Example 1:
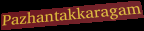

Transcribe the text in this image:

Pazhantakkaragam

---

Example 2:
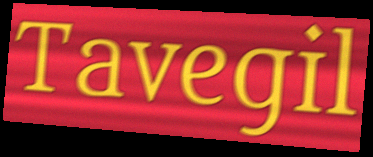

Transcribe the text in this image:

Tavegil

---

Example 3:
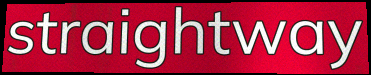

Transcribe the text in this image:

straightway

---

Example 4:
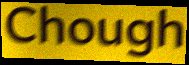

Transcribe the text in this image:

Chough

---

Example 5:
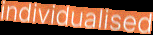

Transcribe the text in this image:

individualised